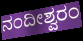
ನಂದೀಶ್ವರಂ